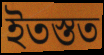
ইতস্তত